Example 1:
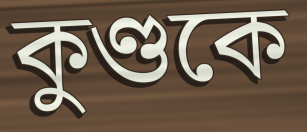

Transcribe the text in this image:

কুণ্ডকে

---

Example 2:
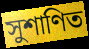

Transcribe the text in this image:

সুশাণিত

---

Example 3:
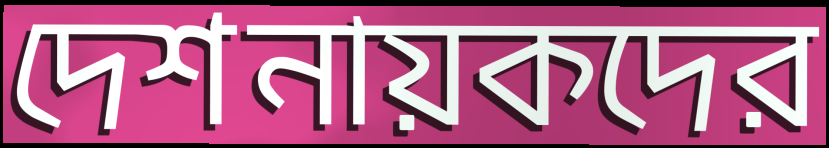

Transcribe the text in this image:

দেশনায়কদের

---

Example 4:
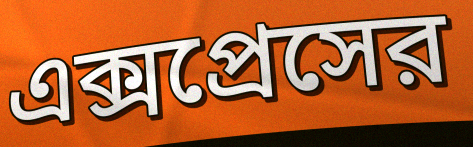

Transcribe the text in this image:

এক্সপ্রেসের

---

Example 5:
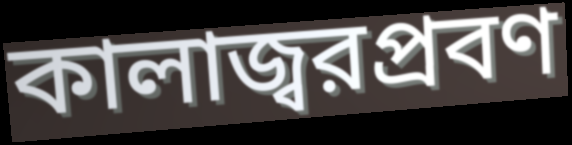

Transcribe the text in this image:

কালাজ্বরপ্রবণ